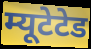
म्यूटेटेड